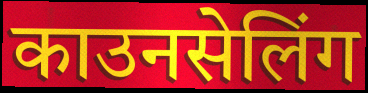
काउनसेलिंग